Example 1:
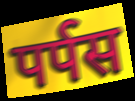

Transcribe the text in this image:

पर्पस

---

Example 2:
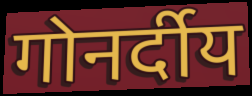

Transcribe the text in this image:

गोनर्दीय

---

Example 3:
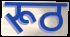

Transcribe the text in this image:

रूठ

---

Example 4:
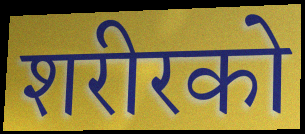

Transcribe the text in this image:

शरीरको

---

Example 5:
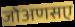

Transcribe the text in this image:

जोअणसए